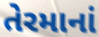
તેરમાનાં